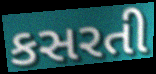
કસરતી